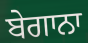
ਬੇਗਾਨਾ